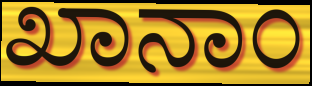
ಖಾನಾಂ